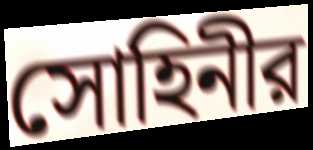
সোহিনীর